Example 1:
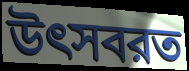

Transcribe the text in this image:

উৎসবরত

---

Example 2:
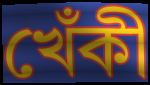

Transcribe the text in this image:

খেঁকী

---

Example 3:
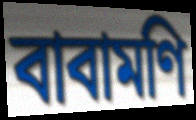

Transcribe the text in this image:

বাবামণি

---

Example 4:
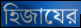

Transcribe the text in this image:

হিজাযের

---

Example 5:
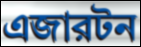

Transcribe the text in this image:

এজারটন